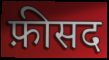
फ़ीसद